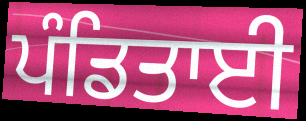
ਪੰਡਿਤਾਈ